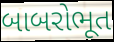
બાબરોભૂત